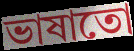
ভাষাতো